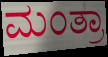
ಮಂತ್ರಾ